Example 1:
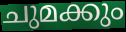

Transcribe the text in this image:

ചുമക്കും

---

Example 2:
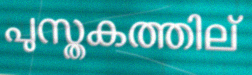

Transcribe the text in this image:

പുസ്തകത്തില്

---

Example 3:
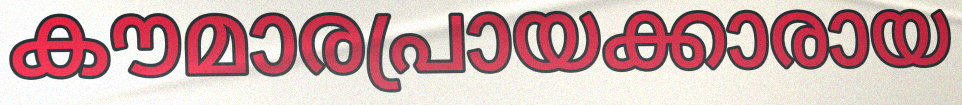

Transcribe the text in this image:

കൗമാരപ്രായക്കാരായ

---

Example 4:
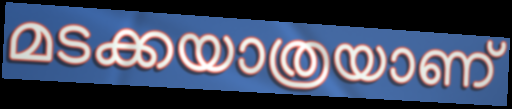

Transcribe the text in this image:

മടക്കയാത്രയാണ്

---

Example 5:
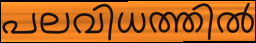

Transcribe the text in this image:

പലവിധത്തിൽ